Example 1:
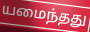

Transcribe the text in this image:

யமைந்தது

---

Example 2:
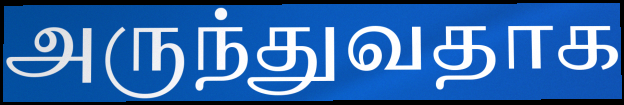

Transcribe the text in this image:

அருந்துவதாக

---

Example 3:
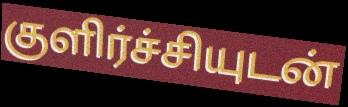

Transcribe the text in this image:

குளிர்ச்சியுடன்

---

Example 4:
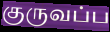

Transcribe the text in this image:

குருவப்ப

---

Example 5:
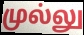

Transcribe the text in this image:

முல்லு